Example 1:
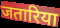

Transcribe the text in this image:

जतारिया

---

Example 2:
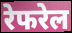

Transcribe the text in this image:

रेफरेल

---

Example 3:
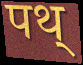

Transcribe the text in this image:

पथ्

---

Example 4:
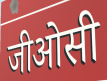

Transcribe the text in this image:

जीओसी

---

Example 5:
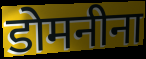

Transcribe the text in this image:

डोमनीना